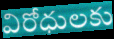
విరోధులకు